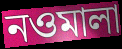
নওমালা